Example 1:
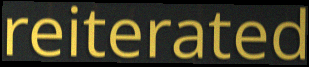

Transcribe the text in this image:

reiterated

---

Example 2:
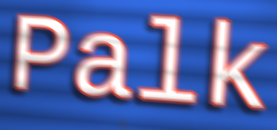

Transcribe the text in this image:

Palk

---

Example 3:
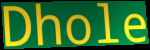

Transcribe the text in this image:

Dhole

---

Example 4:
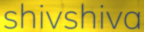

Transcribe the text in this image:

shivshiva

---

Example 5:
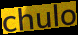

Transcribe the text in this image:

chulo